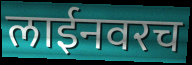
लाईनवरच